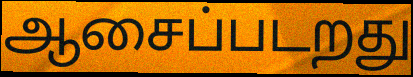
ஆசைப்படறது